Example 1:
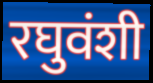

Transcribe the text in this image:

रघुवंशी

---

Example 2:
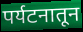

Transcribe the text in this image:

पर्यटनातून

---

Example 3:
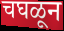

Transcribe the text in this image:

चघळून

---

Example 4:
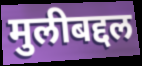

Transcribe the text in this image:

मुलीबद्दल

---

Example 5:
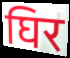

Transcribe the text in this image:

घिर